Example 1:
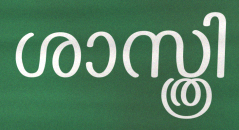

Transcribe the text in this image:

ശാസ്ത്രി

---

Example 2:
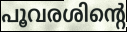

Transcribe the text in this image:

പൂവരശിന്റെ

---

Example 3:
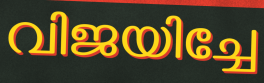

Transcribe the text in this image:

വിജയിച്ചേ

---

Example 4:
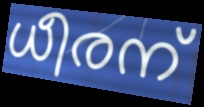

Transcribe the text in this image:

ധീരന്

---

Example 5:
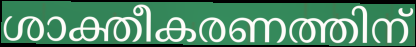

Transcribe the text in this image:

ശാക്തീകരണത്തിന്